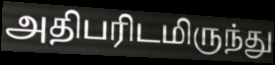
அதிபரிடமிருந்து